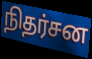
நிதர்சன